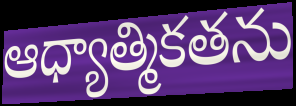
ఆధ్యాత్మికతను